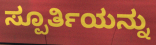
ಸ್ಪೂರ್ತಿಯನ್ನು